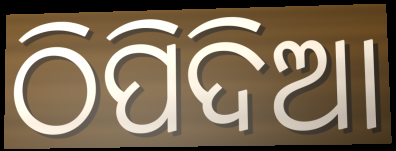
ଠିପିଦିଆ